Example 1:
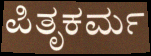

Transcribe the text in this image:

ಪಿತೃಕರ್ಮ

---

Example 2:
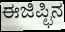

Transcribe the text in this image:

ಈಜಿಪ್ಟಿನ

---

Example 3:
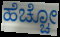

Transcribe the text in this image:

ಹೆಚ್ಚೋ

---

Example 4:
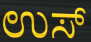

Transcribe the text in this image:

ಉಸ್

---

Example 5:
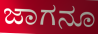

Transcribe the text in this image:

ಜಾಗನೂ